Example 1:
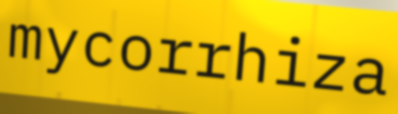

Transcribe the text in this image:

mycorrhiza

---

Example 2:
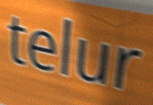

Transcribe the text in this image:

telur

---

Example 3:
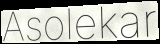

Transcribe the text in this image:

Asolekar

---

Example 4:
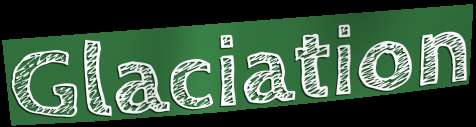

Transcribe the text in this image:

Glaciation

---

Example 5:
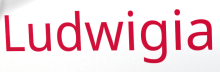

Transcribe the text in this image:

Ludwigia